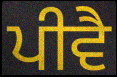
ਪੀਵੈ